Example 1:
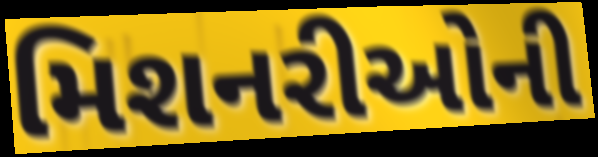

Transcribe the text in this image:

મિશનરીઓની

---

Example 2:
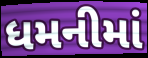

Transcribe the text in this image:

ધમનીમાં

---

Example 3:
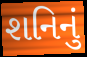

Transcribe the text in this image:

શનિનું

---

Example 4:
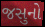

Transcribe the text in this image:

જસુનો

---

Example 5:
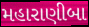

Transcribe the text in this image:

મહારાણીબા